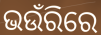
ଭଉଁରିରେ